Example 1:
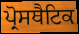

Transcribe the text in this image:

ਪ੍ਰੋਸਥੈਟਿਕ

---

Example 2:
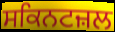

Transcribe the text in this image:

ਸਕਿਨਟਜ਼ਲ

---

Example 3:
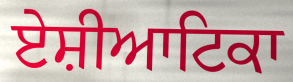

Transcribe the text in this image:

ਏਸ਼ੀਆਟਿਕਾ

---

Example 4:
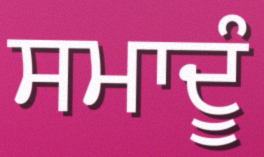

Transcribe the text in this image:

ਸਮਾਦੂੰ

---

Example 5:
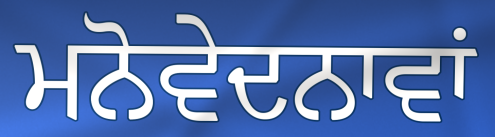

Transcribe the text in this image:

ਮਨੋਵੇਦਨਾਵਾਂ